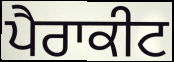
ਪੈਰਾਕੀਟ